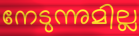
നേടുന്നുമില്ല